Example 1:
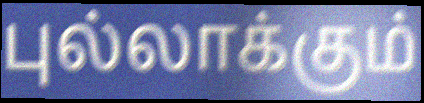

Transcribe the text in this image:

புல்லாக்கும்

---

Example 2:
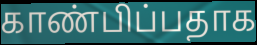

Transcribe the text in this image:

காண்பிப்பதாக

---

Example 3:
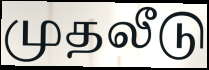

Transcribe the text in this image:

முதலீடு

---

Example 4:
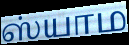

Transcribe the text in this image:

ஸ்யாம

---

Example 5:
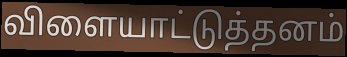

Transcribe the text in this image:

விளையாட்டுத்தனம்